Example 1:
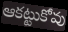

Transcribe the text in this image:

ఆకట్టుకోవు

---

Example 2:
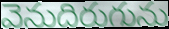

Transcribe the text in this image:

వెనుదిరుగును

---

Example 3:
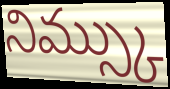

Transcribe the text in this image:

నిమ్స్కు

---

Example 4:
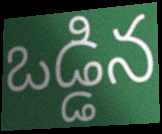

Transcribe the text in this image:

ఒడ్డిన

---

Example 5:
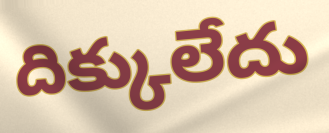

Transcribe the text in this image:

దిక్కులేదు